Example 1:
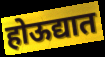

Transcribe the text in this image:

होऊद्यात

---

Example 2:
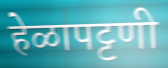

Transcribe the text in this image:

हेळापट्टणी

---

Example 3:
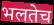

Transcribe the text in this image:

भलतेच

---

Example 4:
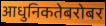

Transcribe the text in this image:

आधुनिकतेबरोबर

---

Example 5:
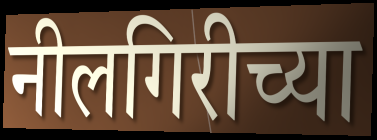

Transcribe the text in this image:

नीलगिरीच्या